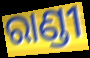
ରାଣ୍ଡୀ